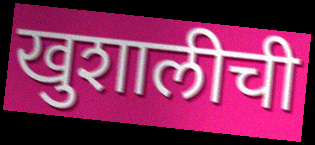
खुशालीची